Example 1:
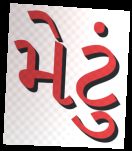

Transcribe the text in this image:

મેટું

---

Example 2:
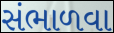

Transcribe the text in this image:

સંભાળવા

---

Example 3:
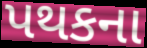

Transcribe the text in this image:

પથકના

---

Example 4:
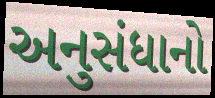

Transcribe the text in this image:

અનુસંધાનો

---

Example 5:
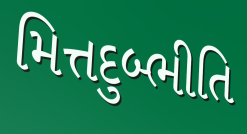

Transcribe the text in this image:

મિત્તદુબ્ભીતિ